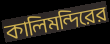
কালিমন্দিরের